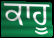
ਕਾਹੂ